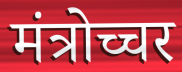
मंत्रोच्चर